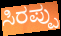
ಸಿರಪ್ಪು